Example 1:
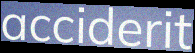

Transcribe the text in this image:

acciderit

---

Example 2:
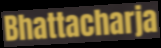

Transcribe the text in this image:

Bhattacharja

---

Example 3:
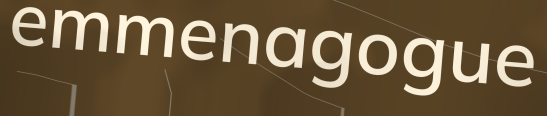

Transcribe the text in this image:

emmenagogue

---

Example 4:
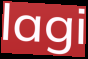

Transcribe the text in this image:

lagi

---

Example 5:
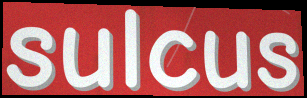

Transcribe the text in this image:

sulcus